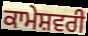
ਕਾਮੇਸ਼ਵਰੀ